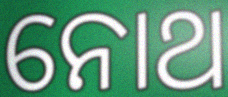
ନୋଥ